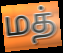
மத்